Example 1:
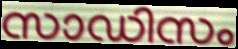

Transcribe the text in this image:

സാഡിസം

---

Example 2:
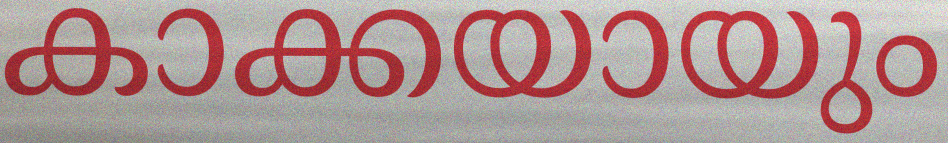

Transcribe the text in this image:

കാക്കയായും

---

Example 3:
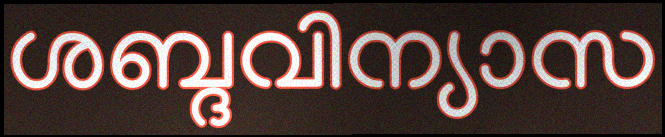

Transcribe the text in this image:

ശബ്ദവിന്യാസ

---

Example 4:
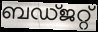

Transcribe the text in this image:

ബഡ്ജറ്റ്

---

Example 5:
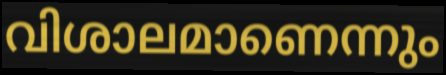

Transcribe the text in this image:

വിശാലമാണെന്നും